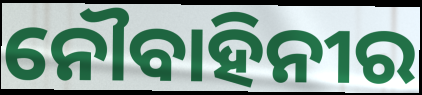
ନୌବାହିନୀର